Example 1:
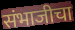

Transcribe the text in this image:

संभाजीचा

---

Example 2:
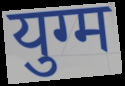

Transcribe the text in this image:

युग्म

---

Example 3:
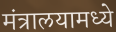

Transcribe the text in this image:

मंत्रालयामध्ये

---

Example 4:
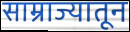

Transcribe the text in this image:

साम्राज्यातून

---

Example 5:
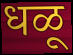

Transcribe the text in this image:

धळू